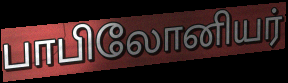
பாபிலோனியர்